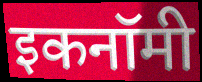
इकनॉमी